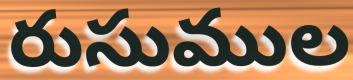
రుసుముల